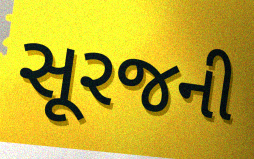
સૂરજની